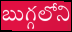
బుగ్గలోని